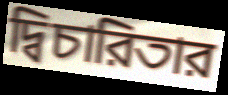
দ্বিচারিতার